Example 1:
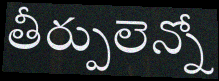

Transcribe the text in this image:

తీర్పులెన్నో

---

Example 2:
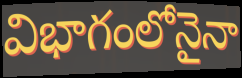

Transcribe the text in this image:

విభాగంలోనైనా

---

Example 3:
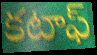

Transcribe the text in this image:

కటాఫ్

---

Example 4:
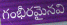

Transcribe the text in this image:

గంభీరమైనవి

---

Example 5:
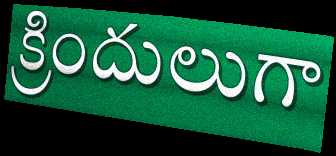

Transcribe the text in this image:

క్రిందులుగా